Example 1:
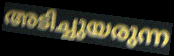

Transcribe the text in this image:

അടിച്ചുയരുന്ന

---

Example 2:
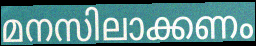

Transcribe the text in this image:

മനസിലാക്കണം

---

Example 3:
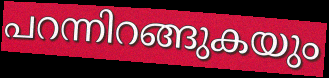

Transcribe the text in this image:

പറന്നിറങ്ങുകയും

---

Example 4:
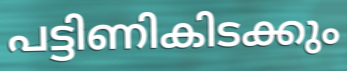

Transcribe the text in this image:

പട്ടിണികിടക്കും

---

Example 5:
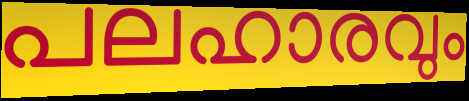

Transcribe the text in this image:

പലഹാരവും